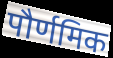
पौर्णमिक